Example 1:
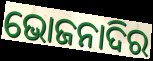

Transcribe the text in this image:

ଭୋଜନାଦିର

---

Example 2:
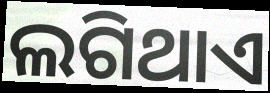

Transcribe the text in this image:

ଲଗିଥାଏ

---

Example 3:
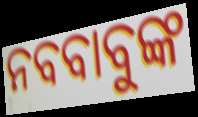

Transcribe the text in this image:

ନବବାବୁଙ୍କ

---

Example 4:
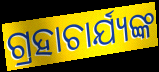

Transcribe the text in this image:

ଗ୍ରହାଚାର୍ଯ୍ୟଙ୍କ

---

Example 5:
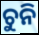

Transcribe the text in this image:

ଚୁନି